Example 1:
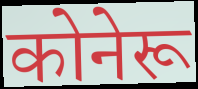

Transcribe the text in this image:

कोनेरू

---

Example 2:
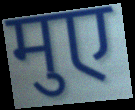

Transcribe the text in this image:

मुए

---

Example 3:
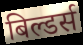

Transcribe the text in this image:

बिल्डर्स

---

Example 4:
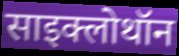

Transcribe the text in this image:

साइक्लोथॉन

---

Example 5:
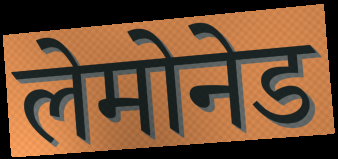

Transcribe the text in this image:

लेमोनेड